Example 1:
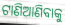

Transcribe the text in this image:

ଟାଣିଆଣିବାକୁ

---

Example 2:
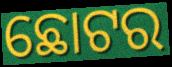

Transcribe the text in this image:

ଛୋଟର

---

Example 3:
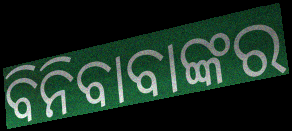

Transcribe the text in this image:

ବିନିବାବାଙ୍କର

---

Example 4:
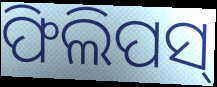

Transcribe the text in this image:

ଫିଲିପସ୍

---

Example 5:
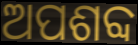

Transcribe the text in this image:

ଅପଶବ୍ଦ